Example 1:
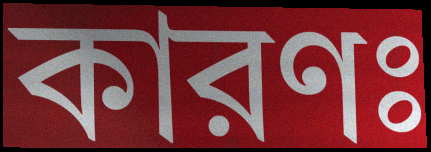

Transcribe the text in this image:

কারণঃ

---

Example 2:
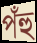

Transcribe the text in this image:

পঁহু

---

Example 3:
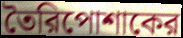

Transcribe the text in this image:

তৈরিপোশাকের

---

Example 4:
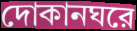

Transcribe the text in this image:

দোকানঘরে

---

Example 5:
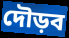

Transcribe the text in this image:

দৌড়ব